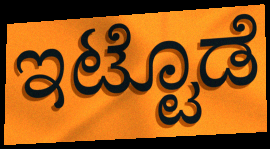
ಇಟ್ಟೊಡೆ